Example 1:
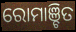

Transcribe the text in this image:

ରୋମାଞ୍ଚିତ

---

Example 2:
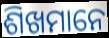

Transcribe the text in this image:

ଶିଖମାନେ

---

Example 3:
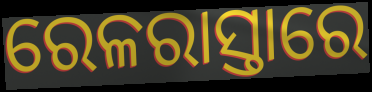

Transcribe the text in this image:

ରେଳରାସ୍ତାରେ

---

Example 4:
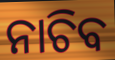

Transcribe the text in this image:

ନାଚିବ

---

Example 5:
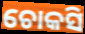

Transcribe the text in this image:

ଚୋକସି